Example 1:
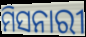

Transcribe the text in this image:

ମିସନାରୀ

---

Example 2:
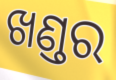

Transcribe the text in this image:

ଖଣ୍ଡର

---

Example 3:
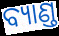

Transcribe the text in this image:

ବ୍ୟାଣ୍ଡ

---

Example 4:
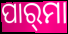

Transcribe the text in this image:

ପାର୍‌ମା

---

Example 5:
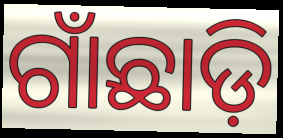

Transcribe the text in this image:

ଗାଁଛାଡ଼ି